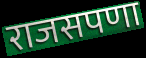
राजसपणा